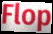
Flop